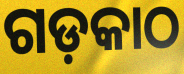
ଗଡ଼କାଠ